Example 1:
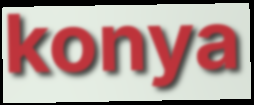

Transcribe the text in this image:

konya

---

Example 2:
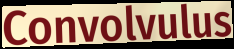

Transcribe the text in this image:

Convolvulus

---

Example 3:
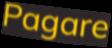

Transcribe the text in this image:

Pagare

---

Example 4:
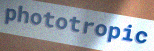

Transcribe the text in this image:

phototropic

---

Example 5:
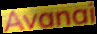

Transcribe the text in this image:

Avanai